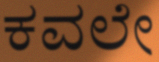
ಕವಲೇ